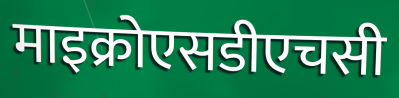
माइक्रोएसडीएचसी